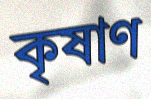
কৃষাণ